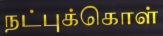
நட்புக்கொள்